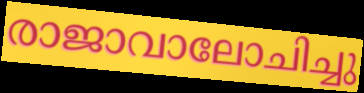
രാജാവാലോചിച്ചു